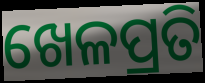
ଖେଳପ୍ରତି